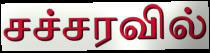
சச்சரவில்